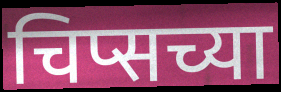
चिप्सच्या